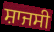
ਸ਼ਾਜਸੀ